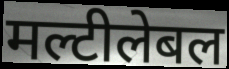
मल्टीलेबल